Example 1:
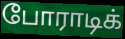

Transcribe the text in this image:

போராடிக்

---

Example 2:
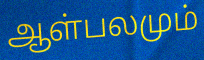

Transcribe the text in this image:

ஆள்பலமும்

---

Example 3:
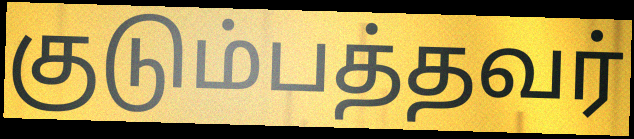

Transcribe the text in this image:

குடும்பத்தவர்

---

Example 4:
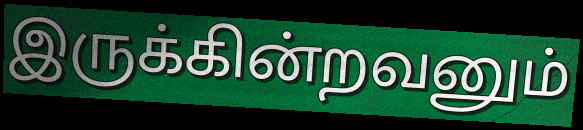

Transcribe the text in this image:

இருக்கின்றவனும்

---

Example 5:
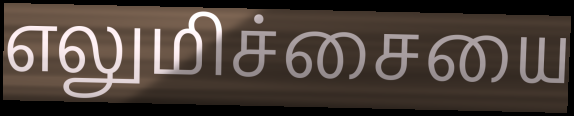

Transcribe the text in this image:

எலுமிச்சையை